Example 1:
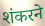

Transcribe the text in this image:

शंकरने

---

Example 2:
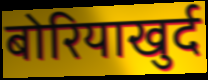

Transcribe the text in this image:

बोरियाखुर्द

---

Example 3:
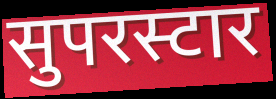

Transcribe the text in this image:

सुपरस्टार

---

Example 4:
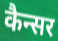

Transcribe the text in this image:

कैन्सर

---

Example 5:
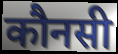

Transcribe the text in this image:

कौनसी